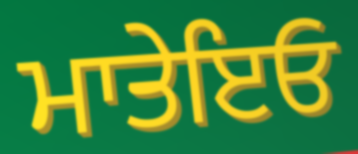
ਮਾਤੇਇਓ